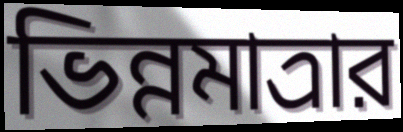
ভিন্নমাত্রার